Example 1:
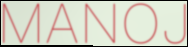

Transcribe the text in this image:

MANOJ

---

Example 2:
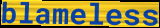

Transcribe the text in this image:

blameless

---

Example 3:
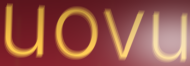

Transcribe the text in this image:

uovu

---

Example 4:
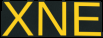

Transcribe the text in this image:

XNE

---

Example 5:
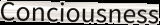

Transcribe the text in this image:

Conciousness